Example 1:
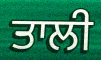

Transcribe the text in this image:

ਤਾਲੀ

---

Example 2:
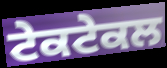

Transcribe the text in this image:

ਟੇਕਟੇਕਲ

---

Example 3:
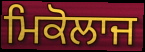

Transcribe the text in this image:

ਮਿਕੋਲਾਜ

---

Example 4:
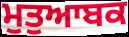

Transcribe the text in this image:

ਮੁਤੁਆਬਕ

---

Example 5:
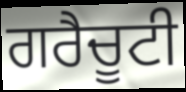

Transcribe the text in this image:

ਗਰੈਚੂਟੀ